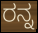
ರನ್ನ